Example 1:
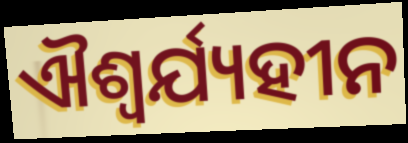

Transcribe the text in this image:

ଐଶ୍ୱର୍ଯ୍ୟହୀନ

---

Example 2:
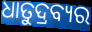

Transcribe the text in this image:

ଧାତୁଦ୍ରବ୍ୟର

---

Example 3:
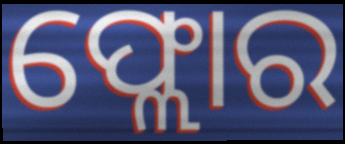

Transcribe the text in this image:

ଫ୍ଲୋର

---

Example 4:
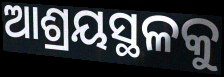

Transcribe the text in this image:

ଆଶ୍ରୟସ୍ଥଳକୁ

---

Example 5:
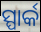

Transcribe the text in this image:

ସ୍ପାର୍କ